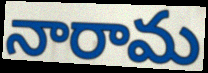
నారామ